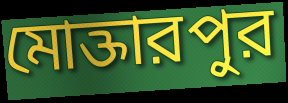
মোক্তারপুর